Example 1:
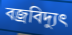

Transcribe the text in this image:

বজ্রবিদ্যুৎ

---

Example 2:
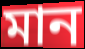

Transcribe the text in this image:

মান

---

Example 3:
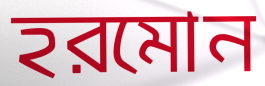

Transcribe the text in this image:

হরমোন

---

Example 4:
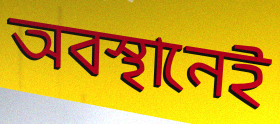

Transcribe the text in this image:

অবস্থানেই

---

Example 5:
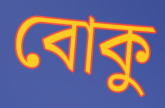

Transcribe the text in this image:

বোকু